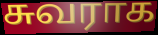
சுவராக